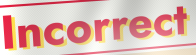
Incorrect